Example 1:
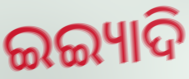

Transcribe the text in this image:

ଇଇ୍ୟାଦି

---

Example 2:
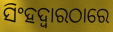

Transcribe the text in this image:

ସିଂହଦ୍ୱାରଠାରେ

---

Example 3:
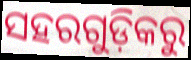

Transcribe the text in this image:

ସହରଗୁଡ଼ିକରୁ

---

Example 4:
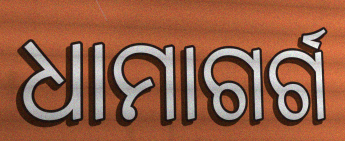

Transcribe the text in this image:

ଧାମାଗର୍ଗ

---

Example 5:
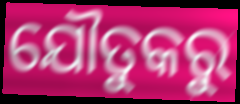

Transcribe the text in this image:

ଯୌତୁକରୁ